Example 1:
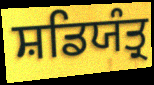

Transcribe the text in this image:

ਸ਼ਡਿਯੰਤ੍ਰ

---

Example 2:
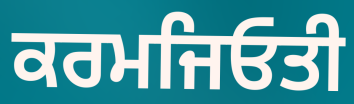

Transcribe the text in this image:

ਕਰਮਜਿਓਤੀ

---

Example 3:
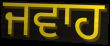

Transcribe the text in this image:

ਜਵਾਹ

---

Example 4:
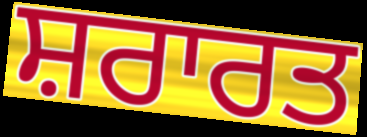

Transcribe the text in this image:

ਸ਼ਰਾਰਤ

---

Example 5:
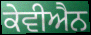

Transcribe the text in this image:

ਕੇਵੀਐਨ